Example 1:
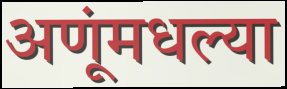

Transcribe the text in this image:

अणूंमधल्या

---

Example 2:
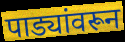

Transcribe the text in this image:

पाड्यांवरून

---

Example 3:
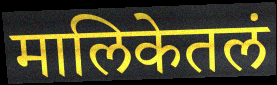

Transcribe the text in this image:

मालिकेतलं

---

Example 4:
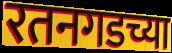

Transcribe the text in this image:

रतनगडच्या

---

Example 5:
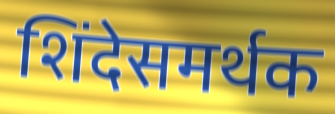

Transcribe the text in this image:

शिंदेसमर्थक